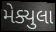
મેક્યુલા